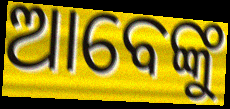
ଆବେଙ୍କୁ